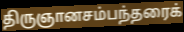
திருஞானசம்பந்தரைக்